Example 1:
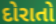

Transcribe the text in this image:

દોરાતો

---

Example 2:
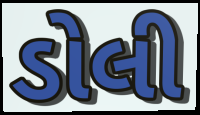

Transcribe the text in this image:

ડોલી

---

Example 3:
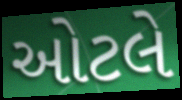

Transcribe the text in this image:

ઓટલે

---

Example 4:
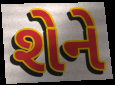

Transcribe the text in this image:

શેને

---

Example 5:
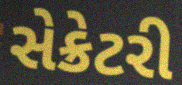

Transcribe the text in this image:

સેક્રેટરી